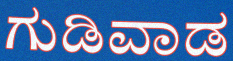
ಗುಡಿವಾಡ